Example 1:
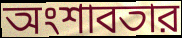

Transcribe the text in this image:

অংশাবতার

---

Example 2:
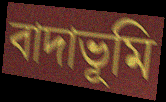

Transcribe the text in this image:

বাদাভূমি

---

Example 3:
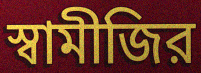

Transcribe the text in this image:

স্বামীজির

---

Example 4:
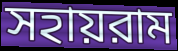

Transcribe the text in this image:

সহায়রাম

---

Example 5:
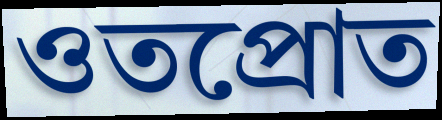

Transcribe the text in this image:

ওতপ্রোত